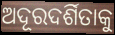
ଅଦୂରଦର୍ଶିତାକୁ